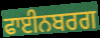
ਫਾਈਨਬਰਗ